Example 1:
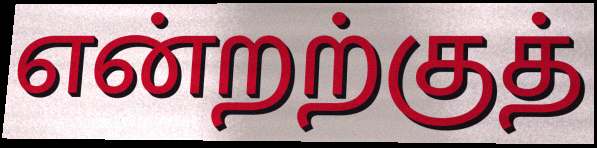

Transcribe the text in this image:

என்றற்குத்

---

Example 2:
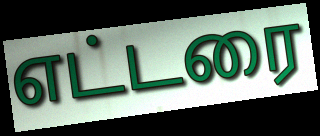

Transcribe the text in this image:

எட்டரை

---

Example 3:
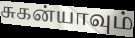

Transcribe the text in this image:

சுகன்யாவும்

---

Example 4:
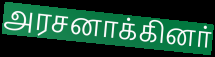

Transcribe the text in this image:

அரசனாக்கினர்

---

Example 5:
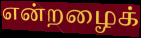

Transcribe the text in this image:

என்றழைக்